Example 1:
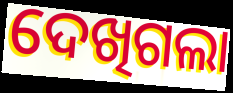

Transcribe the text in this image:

ଦେଖିଗଲା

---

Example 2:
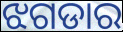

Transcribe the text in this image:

ଝଗଡାର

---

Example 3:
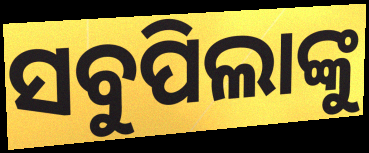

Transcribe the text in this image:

ସବୁପିଲାଙ୍କୁ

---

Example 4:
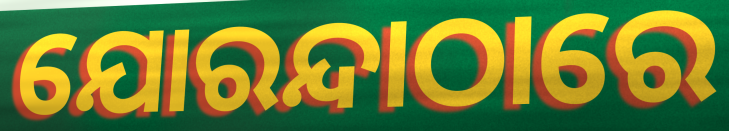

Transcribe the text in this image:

ଯୋରନ୍ଦାଠାରେ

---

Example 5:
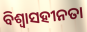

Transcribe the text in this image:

ବିଶ୍ୱାସହୀନତା